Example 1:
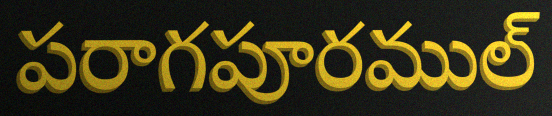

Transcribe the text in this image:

పరాగపూరముల్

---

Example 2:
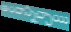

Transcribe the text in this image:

అందాన్నిచ్చాయి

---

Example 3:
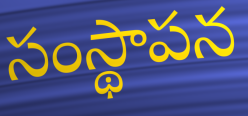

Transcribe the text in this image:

సంస్థాపన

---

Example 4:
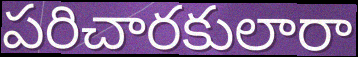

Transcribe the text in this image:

పరిచారకులారా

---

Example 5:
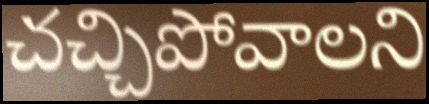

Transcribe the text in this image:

చచ్చిపోవాలని